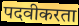
पदवीकरता